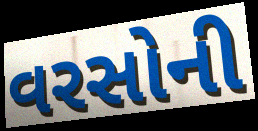
વરસોની